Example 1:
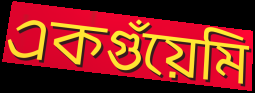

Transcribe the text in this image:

একগুঁয়েমি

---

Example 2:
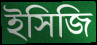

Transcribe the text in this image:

ইসিজি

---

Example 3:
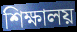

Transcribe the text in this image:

শিক্ষালয়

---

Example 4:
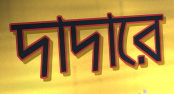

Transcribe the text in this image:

দাদারে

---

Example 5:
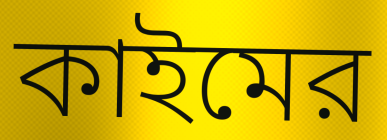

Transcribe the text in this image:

কাইমের